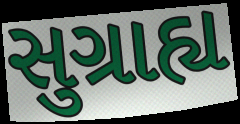
સુગ્રાહ્ય